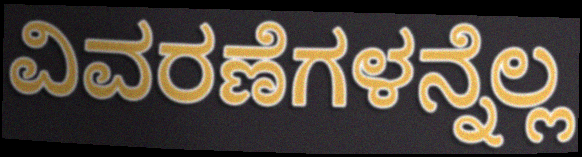
ವಿವರಣೆಗಳನ್ನೆಲ್ಲ